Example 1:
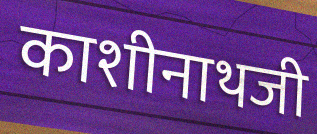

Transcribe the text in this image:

काशीनाथजी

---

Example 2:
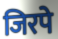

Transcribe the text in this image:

जिरपे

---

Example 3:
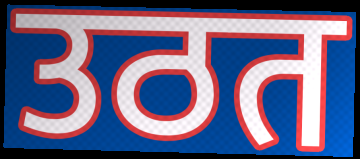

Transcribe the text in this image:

उठत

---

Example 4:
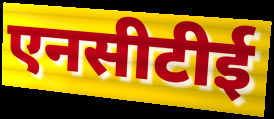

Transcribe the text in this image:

एनसीटीई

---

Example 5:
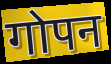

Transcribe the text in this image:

गोपन